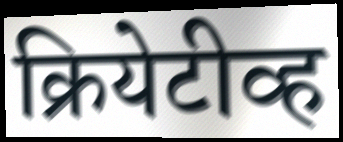
क्रियेटीव्ह